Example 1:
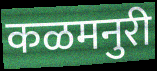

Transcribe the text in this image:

कळमनुरी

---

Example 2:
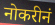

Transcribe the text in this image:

नोकरीनं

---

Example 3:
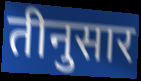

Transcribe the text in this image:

तीनुसार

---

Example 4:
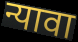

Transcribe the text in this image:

न्यावा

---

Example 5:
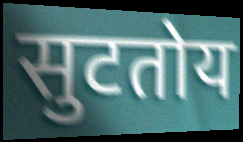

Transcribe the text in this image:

सुटतोय